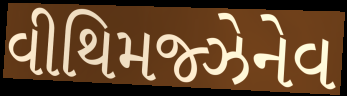
વીથિમજ્ઝેનેવ